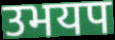
उभयप